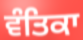
ਵੰਤਿਕਾ